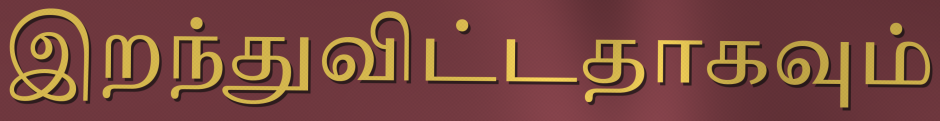
இறந்துவிட்டதாகவும்